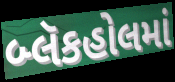
બ્લૅકહોલમાં